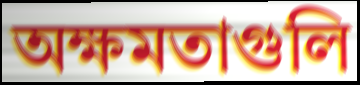
অক্ষমতাগুলি